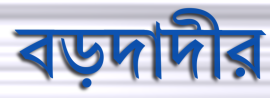
বড়দাদীর